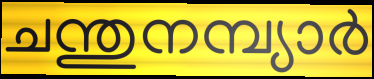
ചന്തുനമ്പ്യാർ